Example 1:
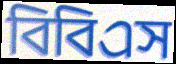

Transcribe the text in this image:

বিবিএস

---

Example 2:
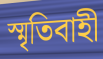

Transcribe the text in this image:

স্মৃতিবাহী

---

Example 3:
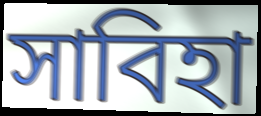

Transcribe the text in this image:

সাবিহা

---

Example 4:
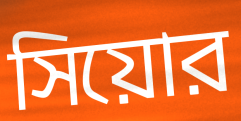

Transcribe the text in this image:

সিয়োর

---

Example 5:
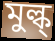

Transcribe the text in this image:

মুল্ক্